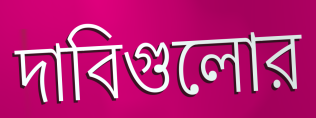
দাবিগুলোর